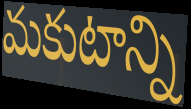
మకుటాన్ని